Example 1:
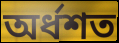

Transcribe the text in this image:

অর্ধশত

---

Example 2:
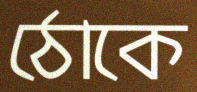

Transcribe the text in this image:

ঠোকে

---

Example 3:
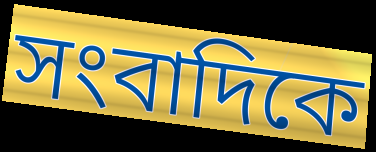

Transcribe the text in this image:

সংবাদিকে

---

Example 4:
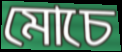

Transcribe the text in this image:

মোচে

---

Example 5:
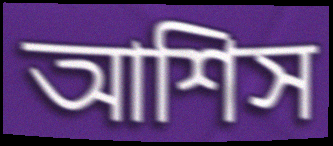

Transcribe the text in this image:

আশিস